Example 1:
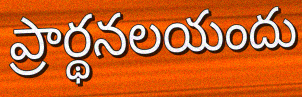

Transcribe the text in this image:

ప్రార్థనలయందు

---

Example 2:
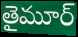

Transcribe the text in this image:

తైమూర్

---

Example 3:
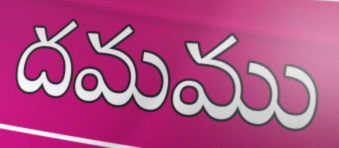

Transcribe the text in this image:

దమము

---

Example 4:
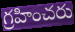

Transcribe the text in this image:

గ్రహించరు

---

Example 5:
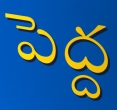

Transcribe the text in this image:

పెద్ద